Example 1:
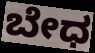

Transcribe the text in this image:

ಬೇಧ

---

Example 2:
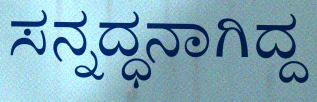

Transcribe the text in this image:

ಸನ್ನದ್ಧನಾಗಿದ್ದ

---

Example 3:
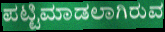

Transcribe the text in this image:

ಪಟ್ಟಿಮಾಡಲಾಗಿರುವ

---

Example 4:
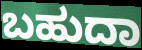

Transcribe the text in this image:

ಬಹುದಾ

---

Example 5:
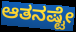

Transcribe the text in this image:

ಆತನಷ್ಟೇ